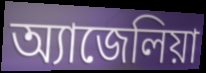
অ্যাজেলিয়া